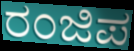
ರಂಜಿಪ